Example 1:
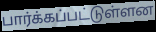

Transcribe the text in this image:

பார்க்கப்பட்டுள்ளன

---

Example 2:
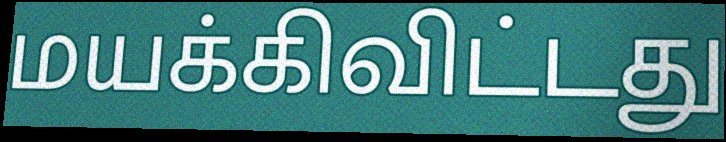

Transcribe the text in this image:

மயக்கிவிட்டது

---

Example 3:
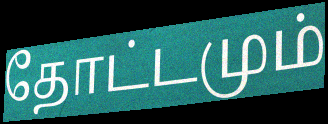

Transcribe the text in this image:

தோட்டமும்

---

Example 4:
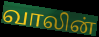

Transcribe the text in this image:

வாலின்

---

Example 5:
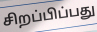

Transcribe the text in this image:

சிறப்பிப்பது